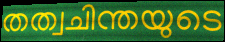
തത്വചിന്തയുടെ